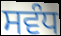
ਸਵੰਧ